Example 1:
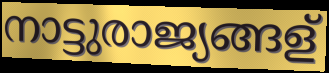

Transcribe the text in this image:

നാട്ടുരാജ്യങ്ങള്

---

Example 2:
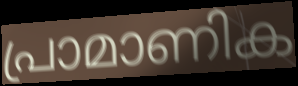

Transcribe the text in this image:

പ്രാമാണിക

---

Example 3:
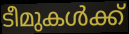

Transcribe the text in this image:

ടീമുകൾക്ക്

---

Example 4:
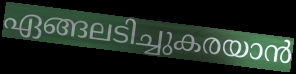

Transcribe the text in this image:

ഏങ്ങലടിച്ചുകരയാൻ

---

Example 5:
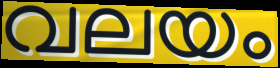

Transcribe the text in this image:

വലയം